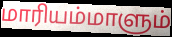
மாரியம்மாளும்